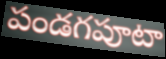
పండగపూటా